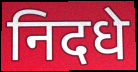
निदधे